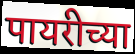
पायरीच्या